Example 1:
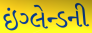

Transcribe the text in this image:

ઇંગ્લેન્ડની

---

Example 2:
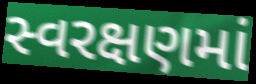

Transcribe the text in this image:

સ્વરક્ષણમાં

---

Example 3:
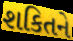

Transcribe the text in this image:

શકિતને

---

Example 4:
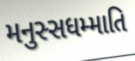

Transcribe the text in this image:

મનુસ્સધમ્માતિ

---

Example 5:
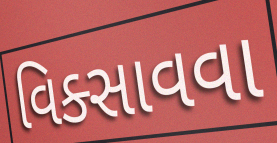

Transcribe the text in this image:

વિક્સાવવા